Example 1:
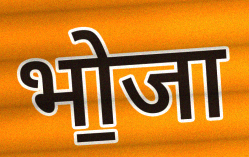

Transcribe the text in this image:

भो॒जा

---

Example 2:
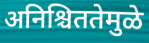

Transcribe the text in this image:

अनिश्चिततेमुळे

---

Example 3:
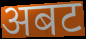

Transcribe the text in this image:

अबट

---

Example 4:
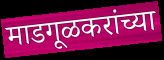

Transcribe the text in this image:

माडगूळकरांच्या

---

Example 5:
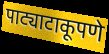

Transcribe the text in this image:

पाट्याटाकूपणे